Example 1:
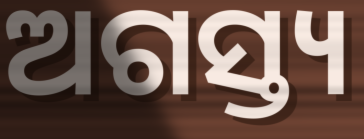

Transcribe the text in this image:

ଅଗସ୍ତ୍ୟ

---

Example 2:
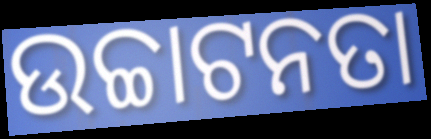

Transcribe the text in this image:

ଉଚ୍ଚାଟନତା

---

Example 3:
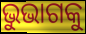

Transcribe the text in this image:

ଭୁଭାଗକୁ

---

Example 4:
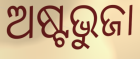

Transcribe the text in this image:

ଅଷ୍ଟଭୁଜା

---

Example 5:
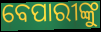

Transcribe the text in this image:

ବେପାରୀଙ୍କୁ